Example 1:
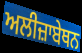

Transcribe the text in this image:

ਅਲੀਜ਼ਾਬੇਥਨ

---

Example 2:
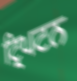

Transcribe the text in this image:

ਟ੍ਰਿਪਟਨ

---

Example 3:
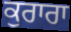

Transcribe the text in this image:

ਕੁਰਾਰਾ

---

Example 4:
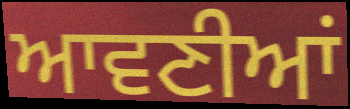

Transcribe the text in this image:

ਆਵਣੀਆਂ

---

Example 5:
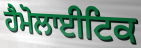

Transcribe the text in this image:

ਹੈਮੋਲਾਈਟਿਕ